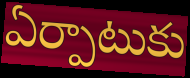
ఏర్పాటుకు